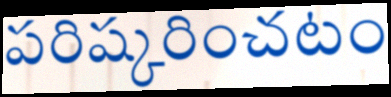
పరిష్కరించటం